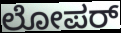
ಲೋಪರ್